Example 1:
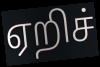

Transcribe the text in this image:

ஏறிச்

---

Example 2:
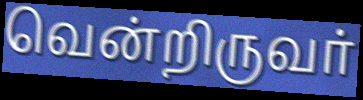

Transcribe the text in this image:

வென்றிருவர்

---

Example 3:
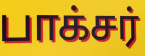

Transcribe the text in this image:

பாக்சர்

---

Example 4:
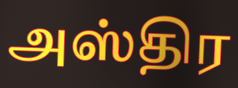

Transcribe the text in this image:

அஸ்திர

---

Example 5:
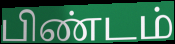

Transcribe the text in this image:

பிண்டம்